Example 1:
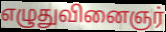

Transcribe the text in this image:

எழுதுவினைஞர்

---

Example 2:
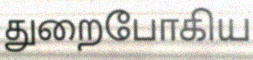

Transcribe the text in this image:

துறைபோகிய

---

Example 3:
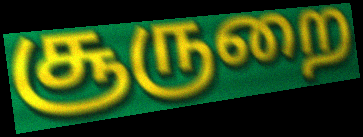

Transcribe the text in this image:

சூருறை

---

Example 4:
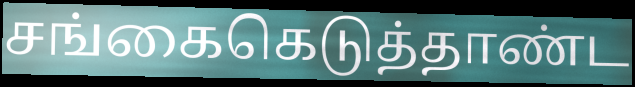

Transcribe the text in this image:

சங்கைகெடுத்தாண்ட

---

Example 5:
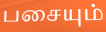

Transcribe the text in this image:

பசையும்